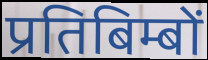
प्रतिबिम्बों